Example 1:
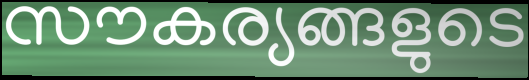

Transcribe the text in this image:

സൗകര്യങ്ങളുടെ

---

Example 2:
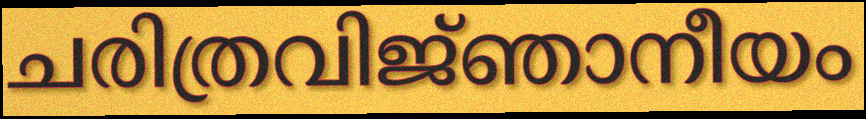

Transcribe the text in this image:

ചരിത്രവിജ്‌ഞാനീയം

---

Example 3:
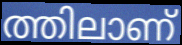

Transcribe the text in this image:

ത്തിലാണ്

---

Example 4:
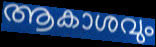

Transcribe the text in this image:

ആകാശവും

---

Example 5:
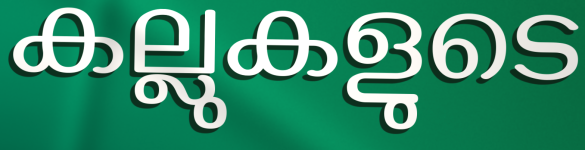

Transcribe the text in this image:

കല്ലുകളുടെ